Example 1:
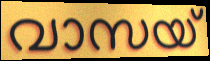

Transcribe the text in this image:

വാസയ്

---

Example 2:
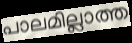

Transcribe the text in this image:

പാലമില്ലാത്ത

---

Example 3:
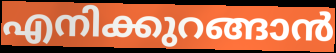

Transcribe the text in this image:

എനിക്കുറങ്ങാൻ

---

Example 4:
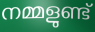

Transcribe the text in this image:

നമ്മളുണ്ട്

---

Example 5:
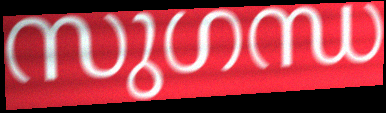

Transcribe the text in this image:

സുഗന്ധ